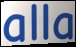
alla